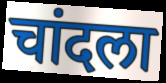
चांदला